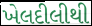
ખેલદીલીથી